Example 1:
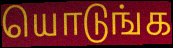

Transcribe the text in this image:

யொடுங்க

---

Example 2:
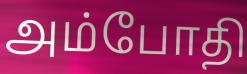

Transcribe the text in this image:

அம்போதி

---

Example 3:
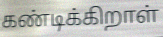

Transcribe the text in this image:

கண்டிக்கிறாள்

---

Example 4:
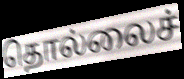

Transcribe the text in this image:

தொல்லைச்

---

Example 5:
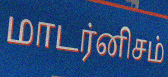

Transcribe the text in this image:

மாடர்னிசம்